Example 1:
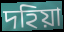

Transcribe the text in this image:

দহিয়া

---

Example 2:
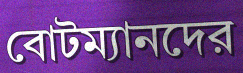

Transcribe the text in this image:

বোটম্যানদের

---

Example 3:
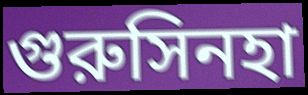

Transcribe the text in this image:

গুরুসিনহা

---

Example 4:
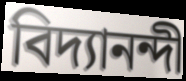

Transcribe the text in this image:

বিদ্যানন্দী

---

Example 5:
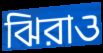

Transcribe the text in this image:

ঝিরাও